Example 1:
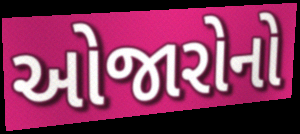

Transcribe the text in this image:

ઓજારોનો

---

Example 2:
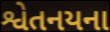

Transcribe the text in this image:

શ્વેતનયના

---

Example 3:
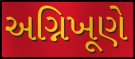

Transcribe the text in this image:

અગ્નિખૂણે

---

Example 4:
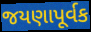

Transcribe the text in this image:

જયણાપૂર્વક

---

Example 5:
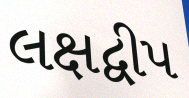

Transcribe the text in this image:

લક્ષદ્વીપ